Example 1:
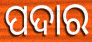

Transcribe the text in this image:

ପଦାର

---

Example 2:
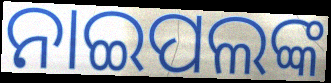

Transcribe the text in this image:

ନାଇପଲଙ୍କ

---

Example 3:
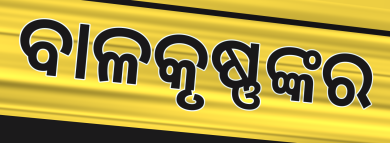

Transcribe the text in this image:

ବାଳକୃଷ୍ଣଙ୍କର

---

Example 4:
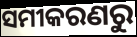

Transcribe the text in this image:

ସମୀକରଣରୁ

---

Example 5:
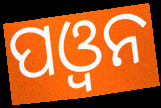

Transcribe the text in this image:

ପଓ୍ବନ